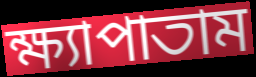
ক্ষ্যাপাতাম